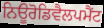
ਨਿਊਰੋਡਿਵੈਲਪਮੈਂਟ